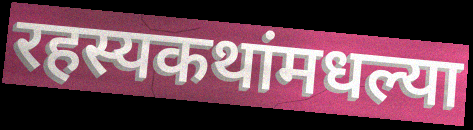
रहस्यकथांमधल्या